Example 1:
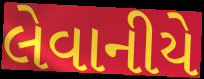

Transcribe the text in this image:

લેવાનીયે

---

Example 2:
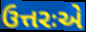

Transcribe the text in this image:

ઉત્તરઃએ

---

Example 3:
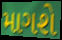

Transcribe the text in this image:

માગશે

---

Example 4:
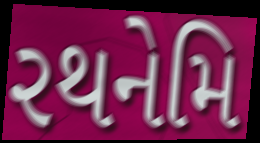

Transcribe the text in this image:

રથનેમિ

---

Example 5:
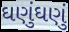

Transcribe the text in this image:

ઘણુંઘણું